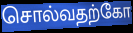
சொல்வதற்கோ